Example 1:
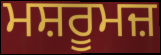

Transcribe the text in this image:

ਮਸ਼ਰੂਮਜ਼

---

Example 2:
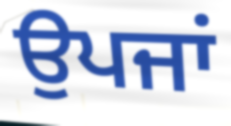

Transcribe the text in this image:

ਉਪਜਾਂ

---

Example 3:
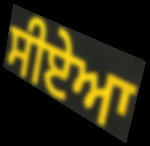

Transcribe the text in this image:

ਸੀਏਆ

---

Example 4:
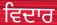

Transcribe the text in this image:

ਵਿਦਾਰ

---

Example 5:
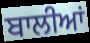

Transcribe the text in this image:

ਬਾਲੀਆਂ